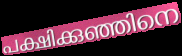
പക്ഷിക്കുഞ്ഞിനെ